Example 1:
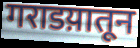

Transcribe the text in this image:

गराडय़ातून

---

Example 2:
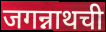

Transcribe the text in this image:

जगन्नाथची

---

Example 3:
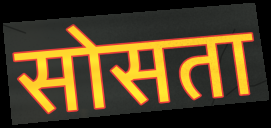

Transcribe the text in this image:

सोसता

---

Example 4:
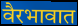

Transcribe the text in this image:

वैरभावात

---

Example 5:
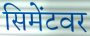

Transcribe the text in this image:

सिमेंटवर